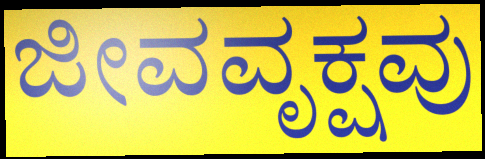
ಜೀವವೃಕ್ಷವು